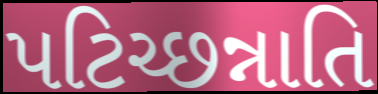
પટિચ્છન્નાતિ